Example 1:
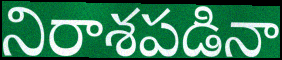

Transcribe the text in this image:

నిరాశపడినా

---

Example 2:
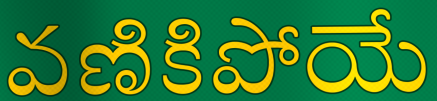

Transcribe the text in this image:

వణికిపోయే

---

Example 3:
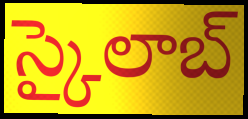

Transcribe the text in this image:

స్కైలాబ్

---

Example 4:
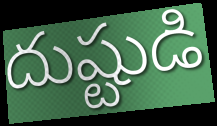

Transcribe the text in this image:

దుష్టుడి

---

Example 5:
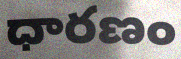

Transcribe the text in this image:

ధారణం